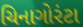
ચિનાગોરંટા